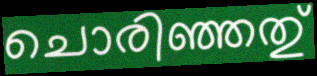
ചൊരിഞ്ഞതു്